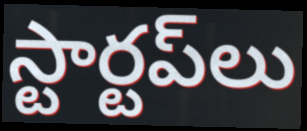
స్టార్టప్‌లు